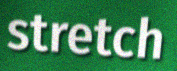
stretch